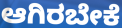
ಆಗಿರಬೇಕೆ